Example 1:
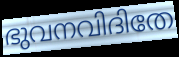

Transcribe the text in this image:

ഭുവനവിദിതേ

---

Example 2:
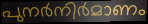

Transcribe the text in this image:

പുനർനിർമാണം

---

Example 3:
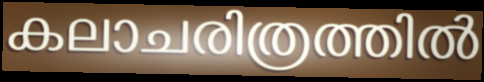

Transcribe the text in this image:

കലാചരിത്രത്തിൽ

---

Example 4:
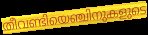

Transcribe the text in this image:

തീവണ്ടിയെഞ്ചിനുകളുടെ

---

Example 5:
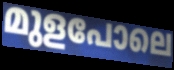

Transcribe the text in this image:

മുളപോലെ